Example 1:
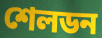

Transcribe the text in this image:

শেলডন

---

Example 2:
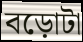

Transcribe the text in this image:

বড়োটা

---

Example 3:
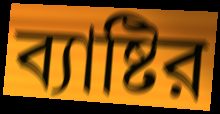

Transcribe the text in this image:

ব্যাষ্টির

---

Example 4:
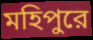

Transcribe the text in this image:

মহিপুরে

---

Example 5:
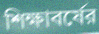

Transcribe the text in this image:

শিক্ষাবর্ষের